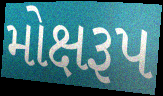
મોક્ષરૂપ